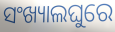
ସଂଖ୍ୟାଲଘୁରେ